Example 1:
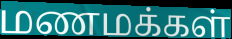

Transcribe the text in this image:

மணமக்கள்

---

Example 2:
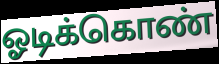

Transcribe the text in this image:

ஓடிக்கொண்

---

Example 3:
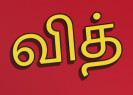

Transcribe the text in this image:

வித்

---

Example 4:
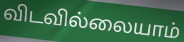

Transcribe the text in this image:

விடவில்லையாம்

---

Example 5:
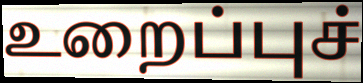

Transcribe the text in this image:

உறைப்புச்